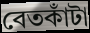
বেতকাঁটা